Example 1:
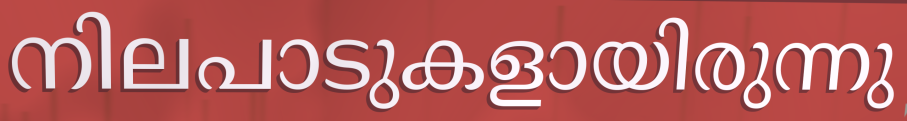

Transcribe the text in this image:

നിലപാടുകളായിരുന്നു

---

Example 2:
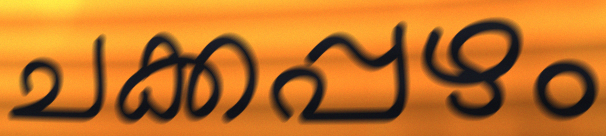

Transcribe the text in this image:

ചക്കപ്പഴം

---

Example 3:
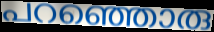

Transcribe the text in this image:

പറഞ്ഞൊരു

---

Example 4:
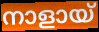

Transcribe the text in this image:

നാളായ്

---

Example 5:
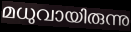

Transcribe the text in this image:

മധുവായിരുന്നു